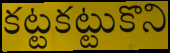
కట్టకట్టుకొని